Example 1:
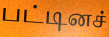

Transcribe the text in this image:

பட்டினச்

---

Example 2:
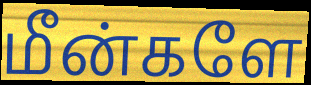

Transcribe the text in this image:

மீன்களே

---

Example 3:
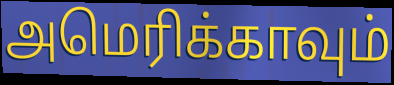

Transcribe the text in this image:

அமெரிக்காவும்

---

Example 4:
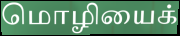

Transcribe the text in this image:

மொழியைக்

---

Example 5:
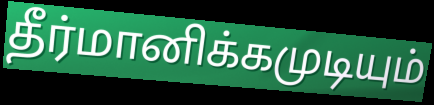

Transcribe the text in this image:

தீர்மானிக்கமுடியும்